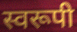
स्वरूपी